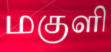
மகுளி